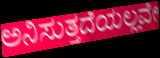
ಅನಿಸುತ್ತದೆಯಲ್ಲವೇ